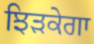
ਝਿੜਕੇਗਾ